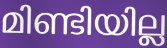
മിണ്ടിയില്ല